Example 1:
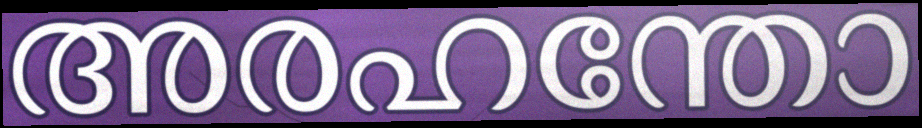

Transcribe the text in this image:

അരഹന്തോ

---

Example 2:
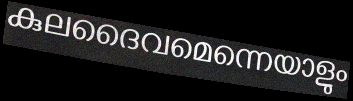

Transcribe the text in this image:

കുലദൈവമെന്നെയാളും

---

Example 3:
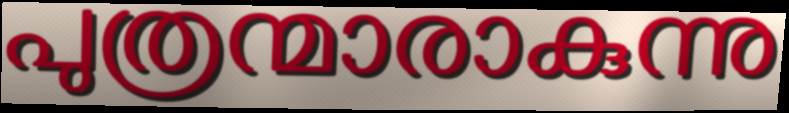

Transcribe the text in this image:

പുത്രന്മാരാകുന്നു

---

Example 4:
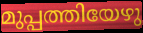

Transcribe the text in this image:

മുപ്പത്തിയേഴു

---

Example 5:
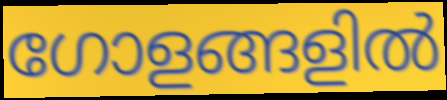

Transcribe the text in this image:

ഗോളങ്ങളിൽ